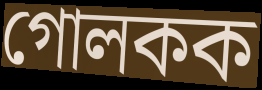
গোলকক